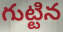
గుట్టిన